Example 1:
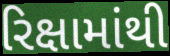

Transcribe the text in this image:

રિક્ષામાંથી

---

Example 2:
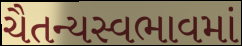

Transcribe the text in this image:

ચૈતન્યસ્વભાવમાં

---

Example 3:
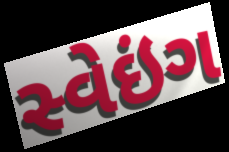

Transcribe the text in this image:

સ્વેઇંગ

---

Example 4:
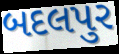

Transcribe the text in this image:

બદલપુર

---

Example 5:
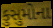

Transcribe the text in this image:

કુસુમોના